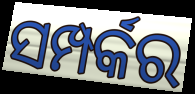
ସମ୍ପର୍କର